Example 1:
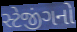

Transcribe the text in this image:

સ્ટેજીંગનો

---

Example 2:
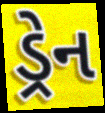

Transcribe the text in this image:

ડ્રેન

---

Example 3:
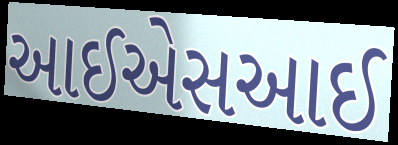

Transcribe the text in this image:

આઈએસઆઈ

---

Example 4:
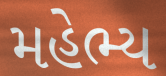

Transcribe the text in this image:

મહેભ્ય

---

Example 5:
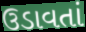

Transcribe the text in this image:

ઉડાવતાં